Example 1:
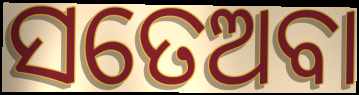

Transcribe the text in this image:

ସତେଅବା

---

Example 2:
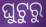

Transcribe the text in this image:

ଘୁଟୁରୁ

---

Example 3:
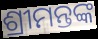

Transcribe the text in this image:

ଶ୍ରୀମନ୍ତଙ୍କ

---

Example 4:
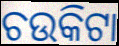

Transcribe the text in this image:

ଚଉକିଟା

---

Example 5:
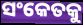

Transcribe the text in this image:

ସଂକେତକୁ